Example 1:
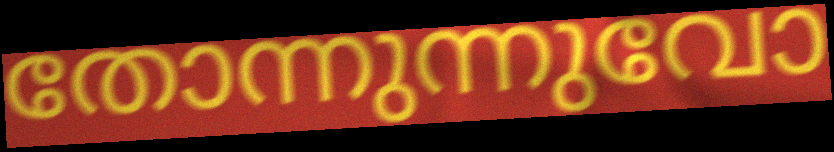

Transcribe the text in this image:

തോന്നുന്നുവോ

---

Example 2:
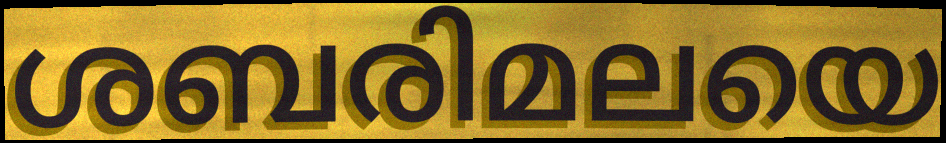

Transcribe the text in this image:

ശബരിമലയെ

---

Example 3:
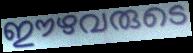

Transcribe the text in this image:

ഈഴവരുടെ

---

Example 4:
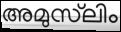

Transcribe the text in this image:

അമുസ്‌ലിം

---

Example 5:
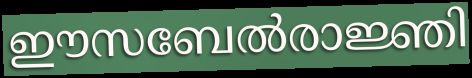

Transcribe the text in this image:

ഈസബേൽരാജ്ഞി